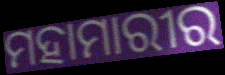
ମହାମାରୀର